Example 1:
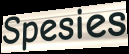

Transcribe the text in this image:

Spesies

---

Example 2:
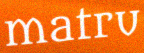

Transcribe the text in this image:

matru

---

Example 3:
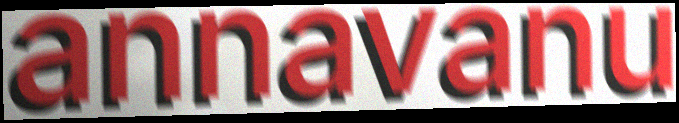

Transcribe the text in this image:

annavanu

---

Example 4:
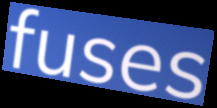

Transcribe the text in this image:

fuses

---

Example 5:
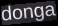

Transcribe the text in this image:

donga